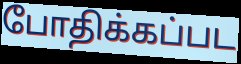
போதிக்கப்பட